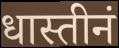
धास्तीनं